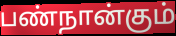
பண்நான்கும்